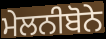
ਮੇਲਨੀਬੋਨੇ